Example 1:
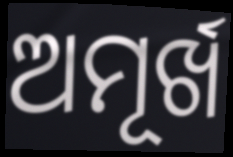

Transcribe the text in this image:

ଅମୂର୍ଖ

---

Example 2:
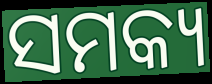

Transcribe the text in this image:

ସମକ୍ୟ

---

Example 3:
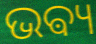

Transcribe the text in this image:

ଭଵ୍ୟ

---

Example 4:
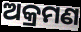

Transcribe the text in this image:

ଅକ୍ରମଣ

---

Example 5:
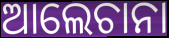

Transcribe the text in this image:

ଆଲେଚାନା